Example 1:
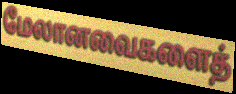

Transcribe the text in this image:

மேலானவைகளைத்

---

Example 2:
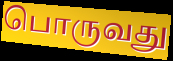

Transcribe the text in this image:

பொருவது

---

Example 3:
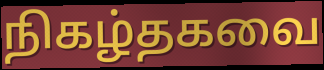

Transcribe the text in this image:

நிகழ்தகவை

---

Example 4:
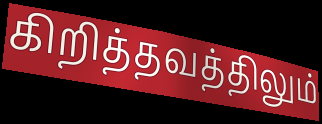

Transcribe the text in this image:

கிறித்தவத்திலும்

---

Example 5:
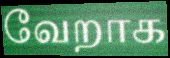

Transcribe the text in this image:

வேறாக